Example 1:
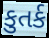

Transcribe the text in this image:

કુતર્ક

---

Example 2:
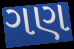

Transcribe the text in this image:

ગણ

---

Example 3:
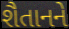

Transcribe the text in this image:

શૈતાનને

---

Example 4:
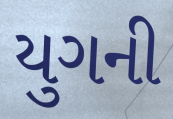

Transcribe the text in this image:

યુગની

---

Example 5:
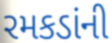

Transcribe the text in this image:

રમકડાંની